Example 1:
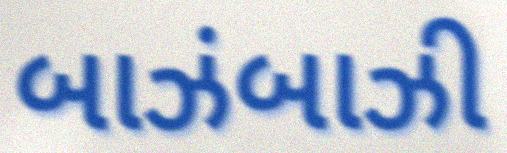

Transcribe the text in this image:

બાઝંબાઝી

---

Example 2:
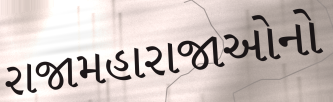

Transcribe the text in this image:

રાજામહારાજાઓનો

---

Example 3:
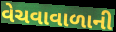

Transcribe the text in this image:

વેચવાવાળાની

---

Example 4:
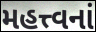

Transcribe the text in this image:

મહત્ત્વનાં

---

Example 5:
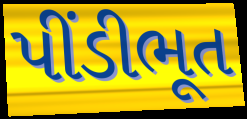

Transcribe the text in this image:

પીંડીભૂત